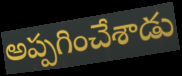
అప్పగించేశాడు